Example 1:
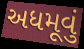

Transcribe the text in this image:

અધમૂવું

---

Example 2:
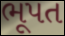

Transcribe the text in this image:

ભૂપત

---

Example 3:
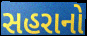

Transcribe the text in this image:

સહરાનો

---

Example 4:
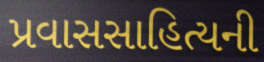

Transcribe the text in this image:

પ્રવાસસાહિત્યની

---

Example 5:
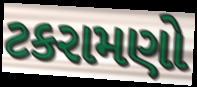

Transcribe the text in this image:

ટકરામણો